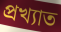
প্রখ্যাত